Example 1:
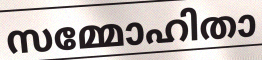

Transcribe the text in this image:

സമ്മോഹിതാ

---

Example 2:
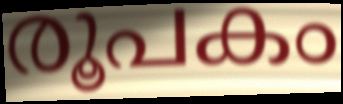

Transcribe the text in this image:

രൂപകം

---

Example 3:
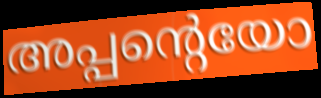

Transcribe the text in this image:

അപ്പന്റെയോ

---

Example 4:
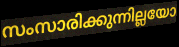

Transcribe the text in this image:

സംസാരിക്കുന്നില്ലയോ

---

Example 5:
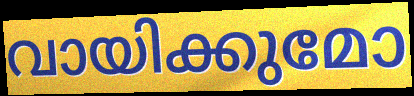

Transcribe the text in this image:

വായിക്കുമോ